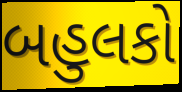
બહુલકો